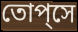
তোপ্‌সে